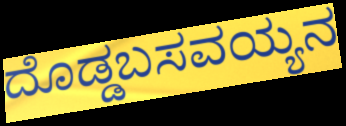
ದೊಡ್ಡಬಸವಯ್ಯನ